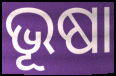
ଭୂଷା